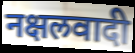
नक्षलवादी